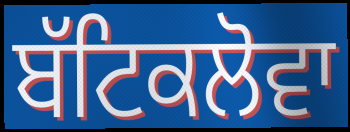
ਬੱਟਿਕਲੋਵਾ